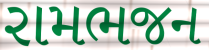
રામભજન